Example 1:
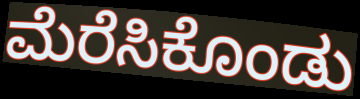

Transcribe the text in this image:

ಮೆರೆಸಿಕೊಂಡು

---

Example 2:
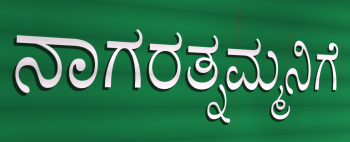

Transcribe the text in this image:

ನಾಗರತ್ನಮ್ಮನಿಗೆ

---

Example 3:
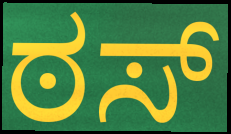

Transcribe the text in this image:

ಠಸ್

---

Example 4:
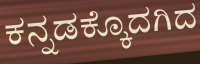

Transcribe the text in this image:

ಕನ್ನಡಕ್ಕೊದಗಿದ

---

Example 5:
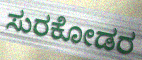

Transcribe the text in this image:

ಸುರಕೋಡರ